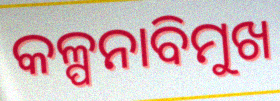
କଳ୍ପନାବିମୁଖ